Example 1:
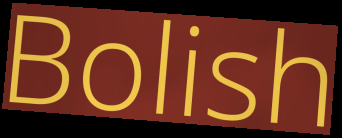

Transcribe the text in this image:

Bolish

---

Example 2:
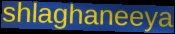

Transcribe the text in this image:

shlaghaneeya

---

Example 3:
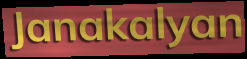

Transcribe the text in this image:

Janakalyan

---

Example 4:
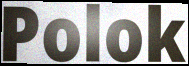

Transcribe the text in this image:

Polok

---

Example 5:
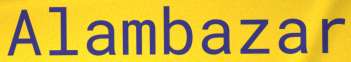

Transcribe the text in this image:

Alambazar